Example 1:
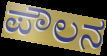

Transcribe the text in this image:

ಪೌಲನ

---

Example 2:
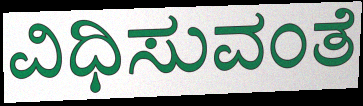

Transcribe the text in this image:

ವಿಧಿಸುವಂತೆ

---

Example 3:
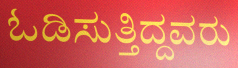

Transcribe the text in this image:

ಓಡಿಸುತ್ತಿದ್ದವರು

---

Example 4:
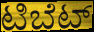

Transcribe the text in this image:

ಟಿಬೆಟ್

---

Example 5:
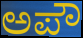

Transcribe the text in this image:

ಅಪೌ